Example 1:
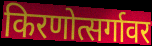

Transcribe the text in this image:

किरणोत्सर्गावर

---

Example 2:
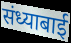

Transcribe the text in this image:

संध्याबाई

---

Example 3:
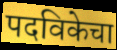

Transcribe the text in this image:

पदविकेचा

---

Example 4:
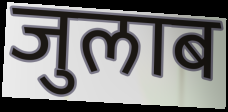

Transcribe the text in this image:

जुलाब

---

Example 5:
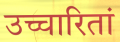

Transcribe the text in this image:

उच्चारितां